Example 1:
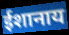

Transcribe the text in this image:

ईशानाय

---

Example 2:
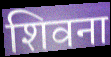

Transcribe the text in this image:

शिवना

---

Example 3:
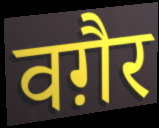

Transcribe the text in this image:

वग़ैर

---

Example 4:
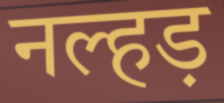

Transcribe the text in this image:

नल्हड़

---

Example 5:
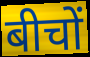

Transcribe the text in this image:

बीचों